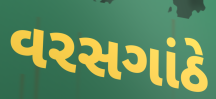
વરસગાંઠે